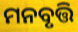
ମନବୃତ୍ତି